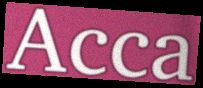
Acca